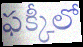
ఫక్కీలో